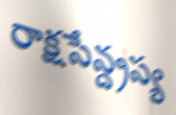
రాక్షసేన్ద్రస్య